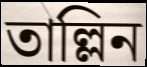
তাল্লিন